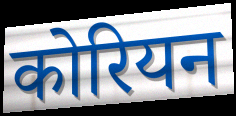
कोरियन